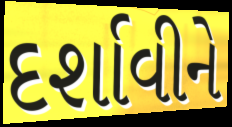
દર્શાવીને